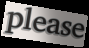
please